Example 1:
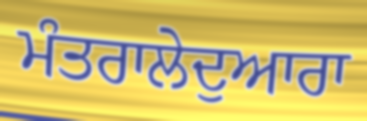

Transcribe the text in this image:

ਮੰਤਰਾਲੇਦੁਆਰਾ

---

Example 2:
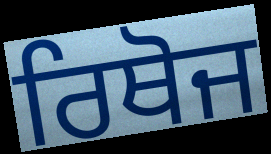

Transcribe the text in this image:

ਰਿਥੋਜ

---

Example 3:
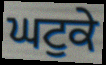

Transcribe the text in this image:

ਘਟੁਕੇ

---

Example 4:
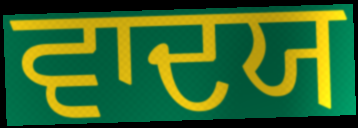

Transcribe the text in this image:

ਵਾਦਯ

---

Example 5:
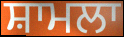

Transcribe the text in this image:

ਸ਼ਾਮਲਾ